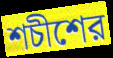
শচীশের